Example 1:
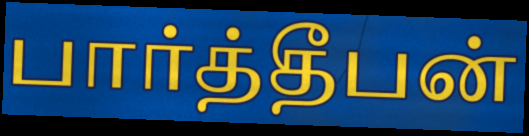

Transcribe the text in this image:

பார்த்தீபன்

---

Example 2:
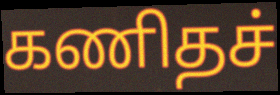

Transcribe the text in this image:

கணிதச்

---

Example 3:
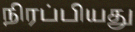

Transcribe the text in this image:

நிரப்பியது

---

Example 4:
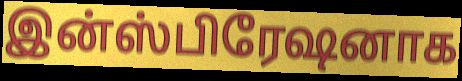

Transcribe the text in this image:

இன்ஸ்பிரேஷனாக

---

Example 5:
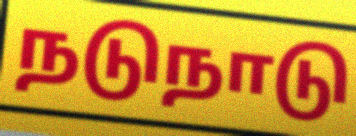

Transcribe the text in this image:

நடுநாடு